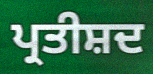
ਪ੍ਰਤੀਸ਼ਦ